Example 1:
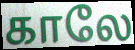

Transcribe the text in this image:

காலே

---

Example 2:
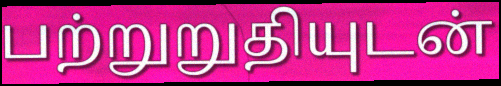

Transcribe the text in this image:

பற்றுறுதியுடன்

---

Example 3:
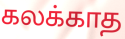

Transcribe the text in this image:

கலக்காத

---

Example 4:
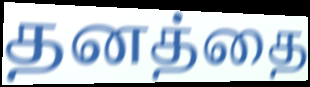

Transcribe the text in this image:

தனத்தை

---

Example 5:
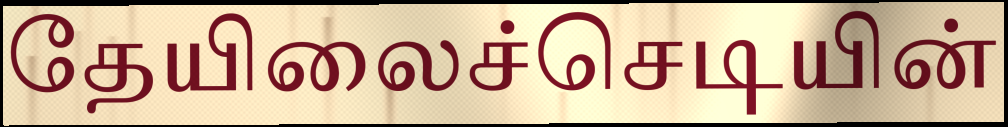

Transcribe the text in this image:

தேயிலைச்செடியின்